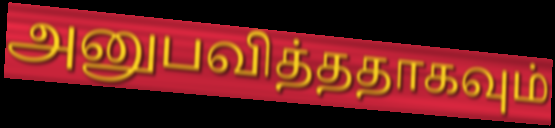
அனுபவித்ததாகவும்